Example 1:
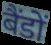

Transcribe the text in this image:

बैंडों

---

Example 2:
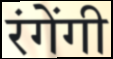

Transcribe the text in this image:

रंगेंगी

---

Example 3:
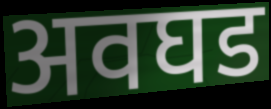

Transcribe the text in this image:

अवघड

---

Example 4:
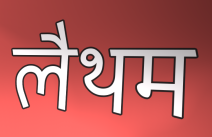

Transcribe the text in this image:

लैथम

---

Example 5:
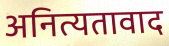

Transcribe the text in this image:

अनित्यतावाद